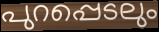
പുറപ്പെടലും